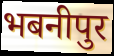
भबनीपुर